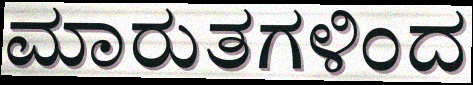
ಮಾರುತಗಳಿಂದ